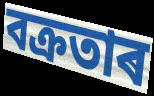
বক্ৰতাৰ